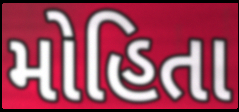
મોહિતા